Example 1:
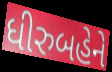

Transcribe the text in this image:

ધીરુબહેને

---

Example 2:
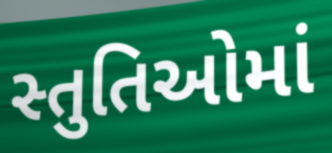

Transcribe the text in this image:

સ્તુતિઓમાં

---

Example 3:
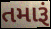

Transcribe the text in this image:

તમારૂં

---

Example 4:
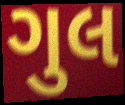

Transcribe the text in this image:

ગુલ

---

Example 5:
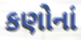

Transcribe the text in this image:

કણોનાં